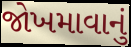
જોખમાવાનું